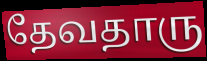
தேவதாரு